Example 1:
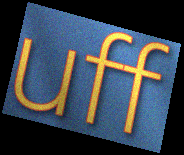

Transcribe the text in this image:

uff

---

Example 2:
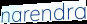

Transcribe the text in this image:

narendra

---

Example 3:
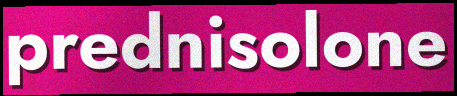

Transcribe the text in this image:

prednisolone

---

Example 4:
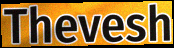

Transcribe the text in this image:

Thevesh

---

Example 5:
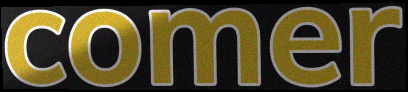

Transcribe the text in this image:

comer